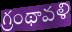
గ్రంథావళి